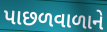
પાછળવાળાને